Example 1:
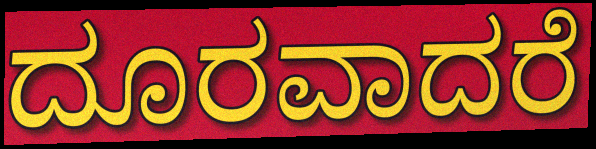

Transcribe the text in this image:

ದೂರವಾದರೆ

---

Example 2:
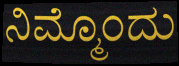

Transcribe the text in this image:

ನಿಮ್ಮೊಂದು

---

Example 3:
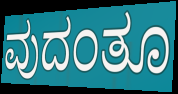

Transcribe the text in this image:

ವುದಂತೂ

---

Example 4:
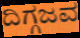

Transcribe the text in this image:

ದಿಗ್ಗಜವ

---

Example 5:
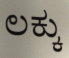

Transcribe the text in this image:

ಲಕ್ಕು